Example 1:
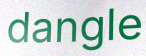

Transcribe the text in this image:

dangle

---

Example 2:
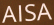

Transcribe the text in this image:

AISA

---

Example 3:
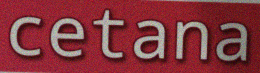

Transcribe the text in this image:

cetana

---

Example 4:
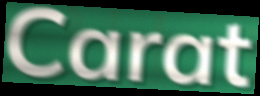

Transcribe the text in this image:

Carat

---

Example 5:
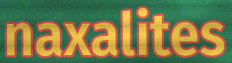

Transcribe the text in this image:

naxalites